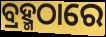
ବ୍ରହ୍ମଠାରେ